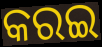
କରଇ